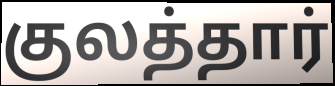
குலத்தார்